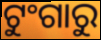
ଟୁଂଗାରୁ